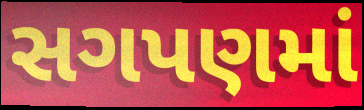
સગપણમાં